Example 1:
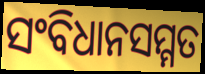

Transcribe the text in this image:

ସଂବିଧାନସମ୍ମତ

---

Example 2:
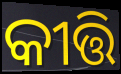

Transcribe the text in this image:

କୀତ୍ତି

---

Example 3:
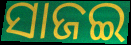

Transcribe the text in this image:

ସାଜଇ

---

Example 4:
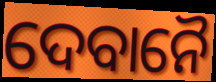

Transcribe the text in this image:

ଦେବାନୈ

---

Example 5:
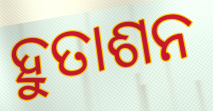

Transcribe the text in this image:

ହୁତାଶନ